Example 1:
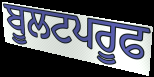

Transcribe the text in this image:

ਬੂਲਟਪਰੂਫ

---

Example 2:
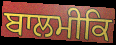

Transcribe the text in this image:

ਬਾਲਮੀਕਿ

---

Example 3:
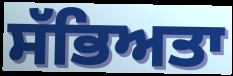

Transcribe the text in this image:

ਸੱਭਿਅਤਾ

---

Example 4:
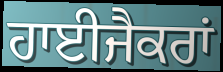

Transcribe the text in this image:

ਹਾਈਜੈਕਰਾਂ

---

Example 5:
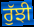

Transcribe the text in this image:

ਰੁੱਝੀ